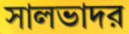
সালভাদর